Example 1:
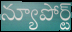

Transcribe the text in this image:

న్యూపోర్ట్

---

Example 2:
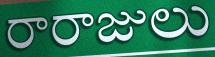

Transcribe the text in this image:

రారాజులు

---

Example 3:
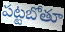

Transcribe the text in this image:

పట్టబోతూ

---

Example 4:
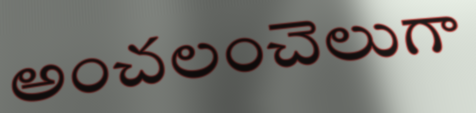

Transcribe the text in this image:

అంచలంచెలుగా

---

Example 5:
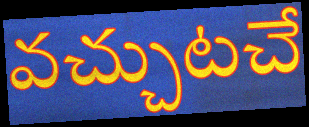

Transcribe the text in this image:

వచ్చుటచే